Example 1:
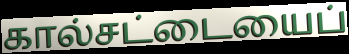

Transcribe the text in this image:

கால்சட்டையைப்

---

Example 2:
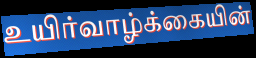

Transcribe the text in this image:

உயிர்வாழ்க்கையின்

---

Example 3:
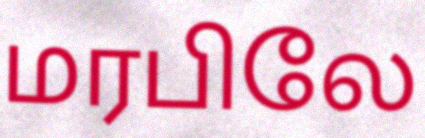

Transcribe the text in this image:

மரபிலே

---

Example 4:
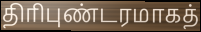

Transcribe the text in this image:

திரிபுண்டரமாகத்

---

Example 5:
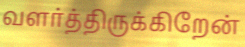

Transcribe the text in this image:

வளர்த்திருக்கிறேன்